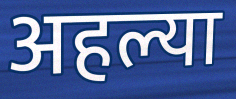
अहल्या